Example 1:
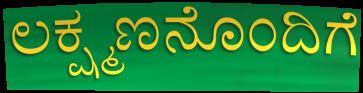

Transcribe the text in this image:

ಲಕ್ಷ್ಮಣನೊಂದಿಗೆ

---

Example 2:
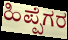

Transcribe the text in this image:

ಹಿಪ್ಪೆಗರ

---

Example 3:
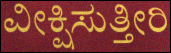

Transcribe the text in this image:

ವೀಕ್ಷಿಸುತ್ತೀರಿ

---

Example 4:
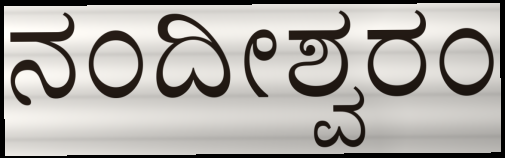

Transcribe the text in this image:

ನಂದೀಶ್ವರಂ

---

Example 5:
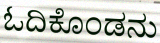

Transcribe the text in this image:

ಓದಿಕೊಂಡನು